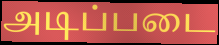
அடிப்படை